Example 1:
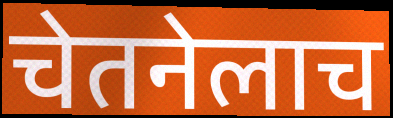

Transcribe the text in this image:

चेतनेलाच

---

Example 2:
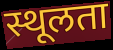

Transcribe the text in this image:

स्थूलता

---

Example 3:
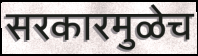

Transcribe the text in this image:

सरकारमुळेच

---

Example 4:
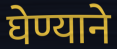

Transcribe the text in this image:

घेण्याने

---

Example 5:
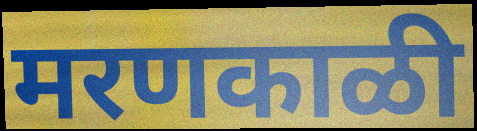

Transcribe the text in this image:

मरणकाळी